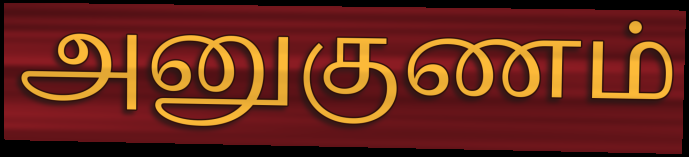
அனுகுணம்